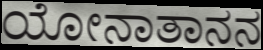
ಯೋನಾತಾನನ